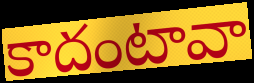
కాదంటావా